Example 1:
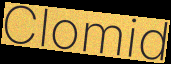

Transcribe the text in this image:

Clomid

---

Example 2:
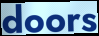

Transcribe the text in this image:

doors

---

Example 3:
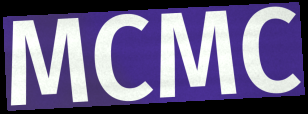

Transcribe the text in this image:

MCMC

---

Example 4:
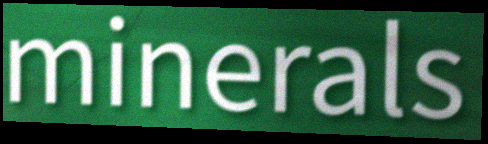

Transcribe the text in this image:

minerals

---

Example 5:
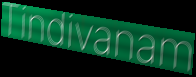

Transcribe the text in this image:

Tindivanam